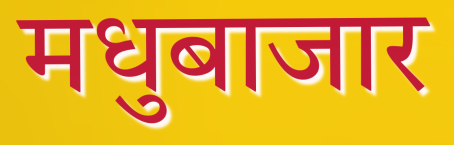
मधुबाजार